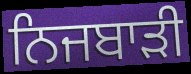
ਨਿਜਬਾੜੀ